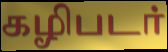
கழிபடர்